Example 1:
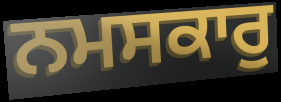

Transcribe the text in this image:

ਨਮਸਕਾਰੁ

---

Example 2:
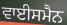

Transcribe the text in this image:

ਵਾਈਸਮੈਨ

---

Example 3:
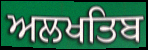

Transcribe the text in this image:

ਅਲਖਤਿਬ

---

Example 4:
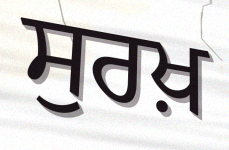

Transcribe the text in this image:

ਸੁਰਖ਼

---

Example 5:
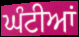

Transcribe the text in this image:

ਘੰਟੀਆਂ